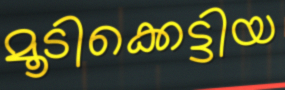
മൂടിക്കെട്ടിയ